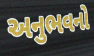
અનુભવનો